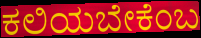
ಕಲಿಯಬೇಕೆಂಬ